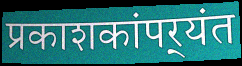
प्रकाशकांपर्यंत